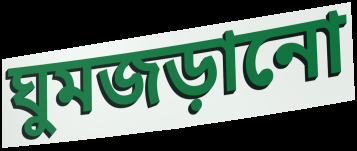
ঘুমজড়ানো